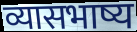
व्यासभाष्य